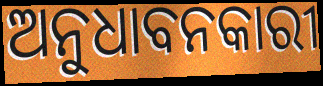
ଅନୁଧାବନକାରୀ